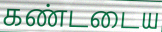
கண்டடைய